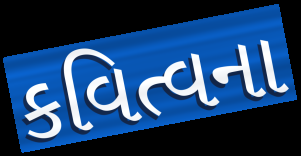
કવિત્વના